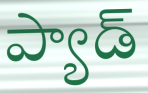
ప్యాడ్